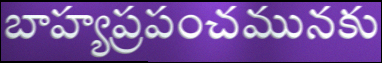
బాహ్యప్రపంచమునకు